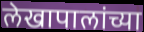
लेखापालांच्या